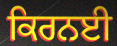
ਕਿਰਨਈ